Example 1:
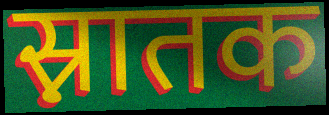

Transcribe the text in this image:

स्नातक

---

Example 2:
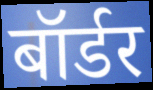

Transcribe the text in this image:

बॉर्डर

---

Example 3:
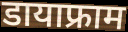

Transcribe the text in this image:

डायाफ्राम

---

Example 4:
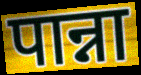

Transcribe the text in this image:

पान्ना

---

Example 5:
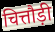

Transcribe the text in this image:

चित्तौड़ी